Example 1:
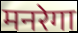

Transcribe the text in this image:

मनरेगा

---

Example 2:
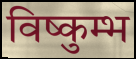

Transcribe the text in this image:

विष्कुम्भ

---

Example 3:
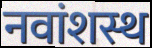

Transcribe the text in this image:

नवांशस्थ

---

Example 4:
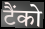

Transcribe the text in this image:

टैंको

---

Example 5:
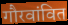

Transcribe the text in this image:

गौरवांवित